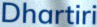
Dhartiri